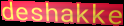
deshakke